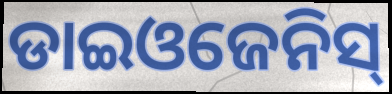
ଡାଇଓଜେନିସ୍